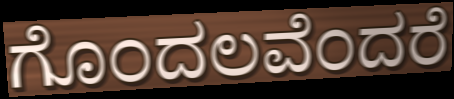
ಗೊಂದಲವೆಂದರೆ